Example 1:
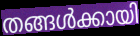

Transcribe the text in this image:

തങ്ങൾക്കായി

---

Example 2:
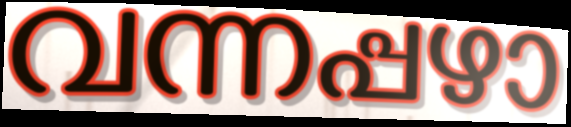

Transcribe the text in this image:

വന്നപ്പഴാ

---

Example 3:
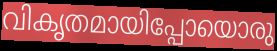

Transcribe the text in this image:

വികൃതമായിപ്പോയൊരു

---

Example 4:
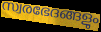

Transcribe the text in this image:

സ്വരഭേദങ്ങളും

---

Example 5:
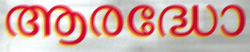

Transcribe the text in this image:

ആരദ്ധോ